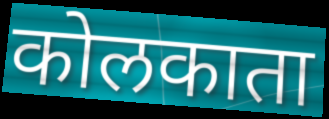
कोलकाता